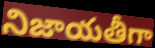
నిజాయతీగా